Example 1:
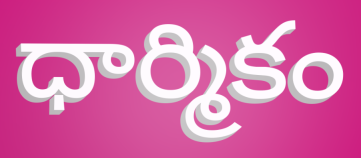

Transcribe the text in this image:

ధార్మికం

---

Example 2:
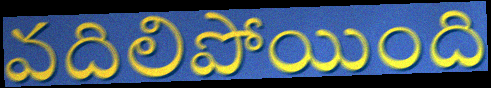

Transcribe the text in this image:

వదిలిపోయింది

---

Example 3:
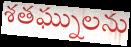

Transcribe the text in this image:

శతఘ్నులను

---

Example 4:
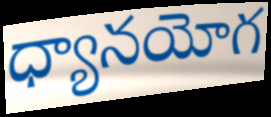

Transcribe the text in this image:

ధ్యానయోగ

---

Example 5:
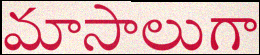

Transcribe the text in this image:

మాసాలుగా